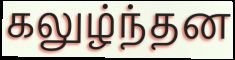
கலுழ்ந்தன